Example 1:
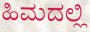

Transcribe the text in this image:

ಹಿಮದಲ್ಲಿ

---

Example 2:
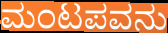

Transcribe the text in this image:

ಮಂಟಪವನು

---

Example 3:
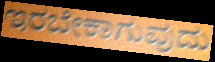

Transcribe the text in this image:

ಇರಬೇಕಾಗುವುದು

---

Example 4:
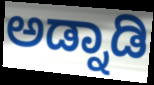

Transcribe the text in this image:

ಅಡ್ನಾಡಿ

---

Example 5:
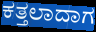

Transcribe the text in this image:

ಕತ್ತಲಾದಾಗ